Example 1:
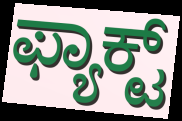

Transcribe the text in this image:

ಫ್ಯಾಕ್ಟ್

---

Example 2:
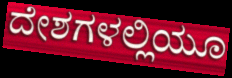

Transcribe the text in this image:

ದೇಶಗಳಲ್ಲಿಯೂ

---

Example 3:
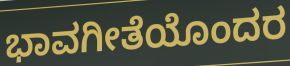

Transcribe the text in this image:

ಭಾವಗೀತೆಯೊಂದರ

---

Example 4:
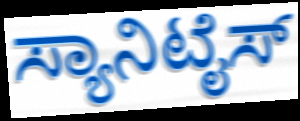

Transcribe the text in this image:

ಸ್ಯಾನಿಟೈಸ್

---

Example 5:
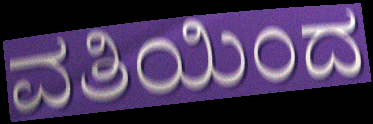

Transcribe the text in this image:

ವತಿಯಿಂದ